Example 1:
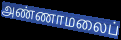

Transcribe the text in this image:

அண்ணாமலைப்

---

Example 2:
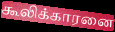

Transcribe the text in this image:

கூலிக்காரனை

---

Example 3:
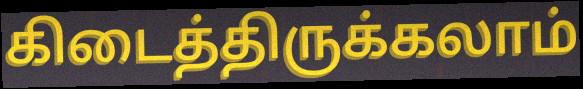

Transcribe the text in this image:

கிடைத்திருக்கலாம்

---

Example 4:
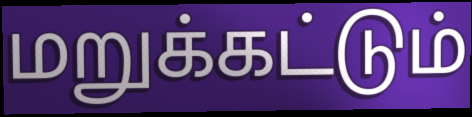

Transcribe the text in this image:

மறுக்கட்டும்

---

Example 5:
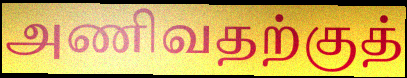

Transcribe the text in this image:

அணிவதற்குத்